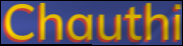
Chauthi